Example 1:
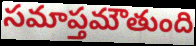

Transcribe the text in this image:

సమాప్తమౌతుంది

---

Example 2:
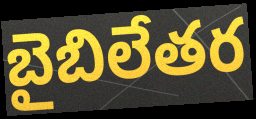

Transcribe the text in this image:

బైబిలేతర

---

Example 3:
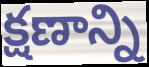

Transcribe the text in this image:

క్షణాన్ని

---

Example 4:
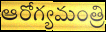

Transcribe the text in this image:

ఆరోగ్యమంత్రి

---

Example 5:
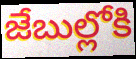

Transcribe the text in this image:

జేబుల్లోకి